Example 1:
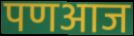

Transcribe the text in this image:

पणआज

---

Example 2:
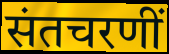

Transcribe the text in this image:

संतचरणीं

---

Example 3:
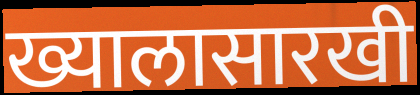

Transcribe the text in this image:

ख्यालासारखी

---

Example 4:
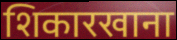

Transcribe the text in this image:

शिकारखाना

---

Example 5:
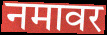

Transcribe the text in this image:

नमावर